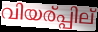
വിയര്പ്പില്